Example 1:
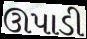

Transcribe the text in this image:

ઊપાડી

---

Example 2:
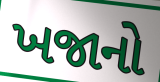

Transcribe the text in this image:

ખજાનો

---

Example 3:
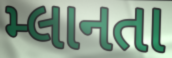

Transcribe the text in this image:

મ્લાનતા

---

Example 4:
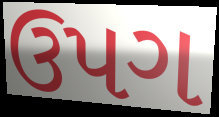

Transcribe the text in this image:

ઉપગ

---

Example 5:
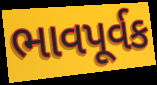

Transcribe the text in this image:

ભાવપૂર્વક